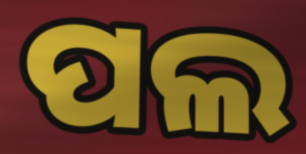
ପଲ